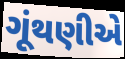
ગૂંથણીએ